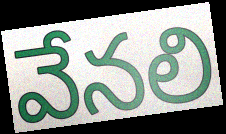
వేనలి